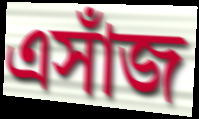
এসাঁজ